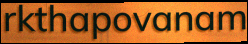
rkthapovanam